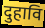
दुहावि